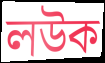
লউক